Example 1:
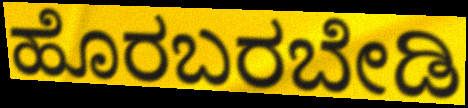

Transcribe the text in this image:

ಹೊರಬರಬೇಡಿ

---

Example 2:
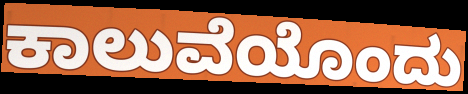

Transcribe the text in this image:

ಕಾಲುವೆಯೊಂದು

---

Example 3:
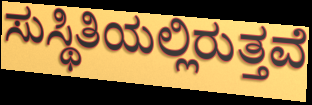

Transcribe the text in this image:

ಸುಸ್ಥಿತಿಯಲ್ಲಿರುತ್ತವೆ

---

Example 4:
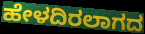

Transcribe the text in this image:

ಹೇಳದಿರಲಾಗದ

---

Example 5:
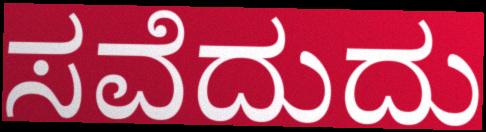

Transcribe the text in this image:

ಸವೆದುದು